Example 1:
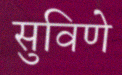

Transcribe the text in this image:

सुविणे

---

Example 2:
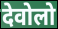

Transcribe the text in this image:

देवोलो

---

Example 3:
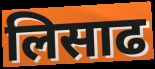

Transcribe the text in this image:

लिसाढ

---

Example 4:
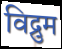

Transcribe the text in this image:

विद्रुम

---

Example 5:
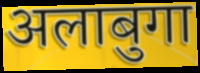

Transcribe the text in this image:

अलाबुगा